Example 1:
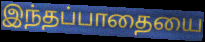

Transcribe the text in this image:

இந்தப்பாதையை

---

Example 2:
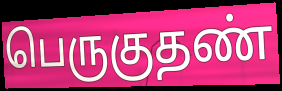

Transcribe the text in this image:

பெருகுதண்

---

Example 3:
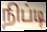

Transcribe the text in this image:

நிப்டி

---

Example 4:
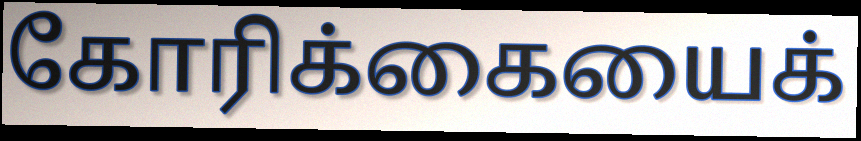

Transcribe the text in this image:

கோரிக்கையைக்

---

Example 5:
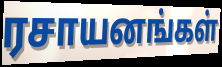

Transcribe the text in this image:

ரசாயனங்கள்